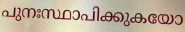
പുനഃസ്ഥാപിക്കുകയോ